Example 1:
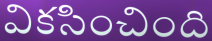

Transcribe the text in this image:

వికసించింది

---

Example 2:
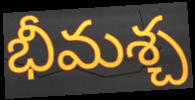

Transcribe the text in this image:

భీమశ్చ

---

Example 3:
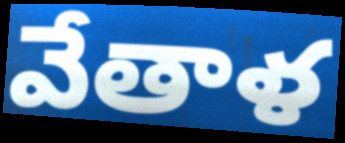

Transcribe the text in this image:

వేతాళ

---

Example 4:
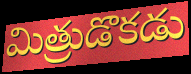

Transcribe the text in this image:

మిత్రుడొకడు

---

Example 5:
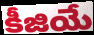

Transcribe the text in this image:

కీజియే